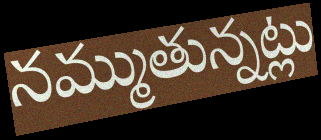
నమ్ముతున్నట్లు